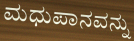
ಮಧುಪಾನವನ್ನು